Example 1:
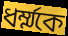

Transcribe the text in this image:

ধর্ম্মকে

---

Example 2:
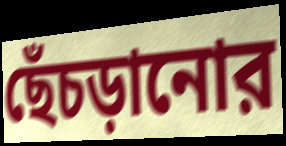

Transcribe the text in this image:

ছেঁচড়ানোর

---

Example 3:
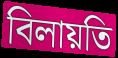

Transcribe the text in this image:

বিলায়তি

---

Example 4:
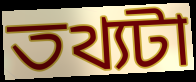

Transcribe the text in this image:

তথ্যটা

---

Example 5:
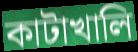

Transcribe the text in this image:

কাটাখালি